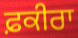
ਫ਼ਕੀਰਾ